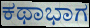
ಕಥಾಭಾಗ